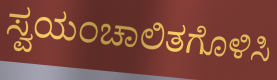
ಸ್ವಯಂಚಾಲಿತಗೊಳಿಸಿ